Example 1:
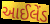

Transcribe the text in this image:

આઈલેંડ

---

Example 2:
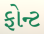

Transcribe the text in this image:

ફોન્ટ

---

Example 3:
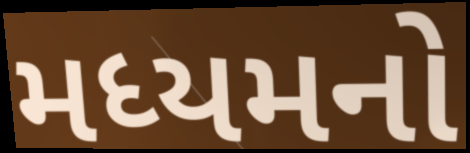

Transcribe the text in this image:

મધ્યમનો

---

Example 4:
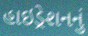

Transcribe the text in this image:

હાઇડ્રેશનનું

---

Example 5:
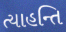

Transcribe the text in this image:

ત્યાહન્તિ